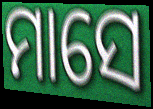
ମାସେ